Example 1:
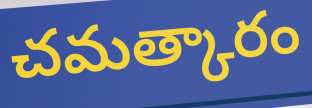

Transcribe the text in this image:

చమత్కారం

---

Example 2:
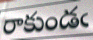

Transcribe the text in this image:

రాకుండఁ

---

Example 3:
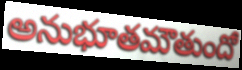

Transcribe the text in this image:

అనుభూతమౌతుందో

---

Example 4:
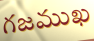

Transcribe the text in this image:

గజముఖ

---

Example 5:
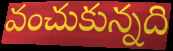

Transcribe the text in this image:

వంచుకున్నది